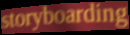
storyboarding